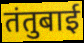
तंतुबाई